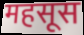
महसूस